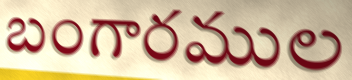
బంగారముల